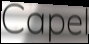
Capel